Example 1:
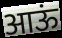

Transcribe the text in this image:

आऊं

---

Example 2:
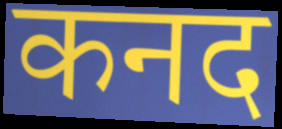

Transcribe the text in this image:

कनद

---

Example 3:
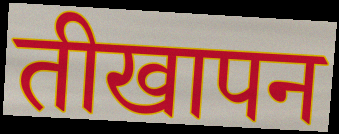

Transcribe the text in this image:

तीखापन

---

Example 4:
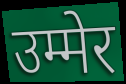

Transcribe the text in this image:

उम्मेर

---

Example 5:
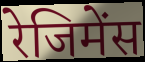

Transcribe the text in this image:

रेजिमेंस